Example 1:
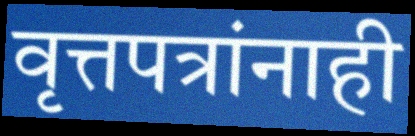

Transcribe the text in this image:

वृत्तपत्रांनाही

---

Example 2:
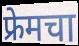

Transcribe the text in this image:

फ्रेमचा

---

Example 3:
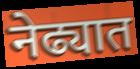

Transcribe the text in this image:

नेढ्यात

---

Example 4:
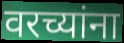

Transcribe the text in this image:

वरच्यांना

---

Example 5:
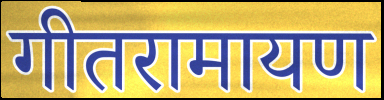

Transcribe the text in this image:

गीतरामायण